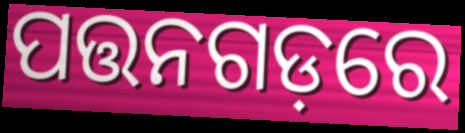
ପତ୍ତନଗଡ଼ରେ